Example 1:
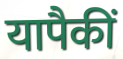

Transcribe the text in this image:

यापैकीं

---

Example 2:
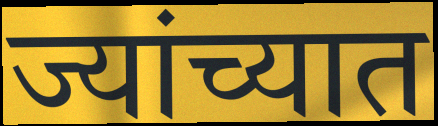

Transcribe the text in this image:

ज्यांच्यात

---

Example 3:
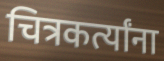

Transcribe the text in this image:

चित्रकर्त्यांना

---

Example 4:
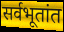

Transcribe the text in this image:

सर्वभूतांत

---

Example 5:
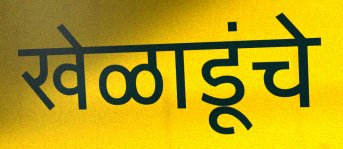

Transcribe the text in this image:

खेळाडूंचे